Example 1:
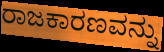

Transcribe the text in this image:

ರಾಜಕಾರಣವನ್ನು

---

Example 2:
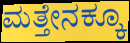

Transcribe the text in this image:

ಮತ್ತೇನಕ್ಕೂ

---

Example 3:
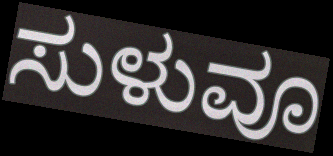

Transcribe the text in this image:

ಸುಳುವೂ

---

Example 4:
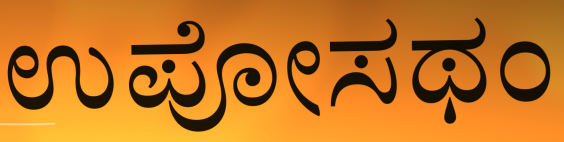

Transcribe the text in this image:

ಉಪೋಸಥಂ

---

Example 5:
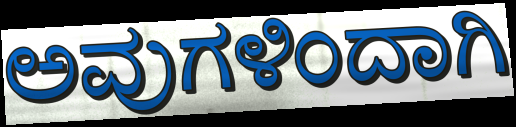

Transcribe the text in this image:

ಅವುಗಳಿಂದಾಗಿ